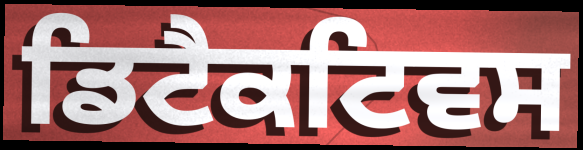
ਡਿਟੈਕਟਿਵਸ